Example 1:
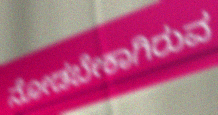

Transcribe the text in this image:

ನೋಡಬೇಕಾಗಿರುವ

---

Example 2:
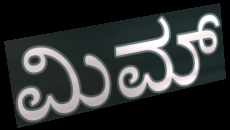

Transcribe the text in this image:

ಮಿಮ್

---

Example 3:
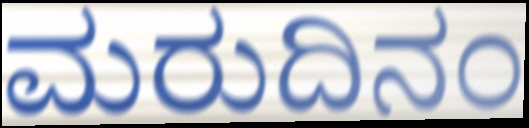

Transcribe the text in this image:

ಮರುದಿನಂ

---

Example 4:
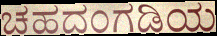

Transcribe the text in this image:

ಚಹದಂಗಡಿಯ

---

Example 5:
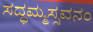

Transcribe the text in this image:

ಸದ್ಧಮ್ಮಸ್ಸವನಂ